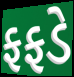
ફફડે